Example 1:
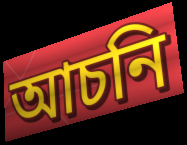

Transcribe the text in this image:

আচনি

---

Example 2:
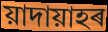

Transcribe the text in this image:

য়াদায়াহৰ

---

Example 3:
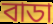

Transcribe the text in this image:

বাডা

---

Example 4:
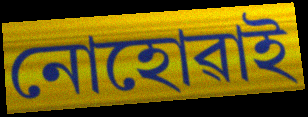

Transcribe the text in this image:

নোহোৱাই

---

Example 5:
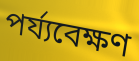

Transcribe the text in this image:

পৰ্য্যবেক্ষণ